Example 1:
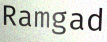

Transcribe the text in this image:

Ramgad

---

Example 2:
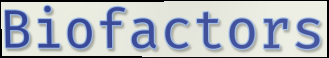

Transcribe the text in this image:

Biofactors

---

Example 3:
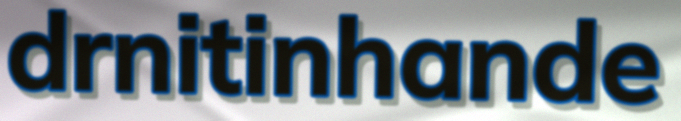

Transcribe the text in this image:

drnitinhande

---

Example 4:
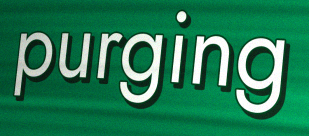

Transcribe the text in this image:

purging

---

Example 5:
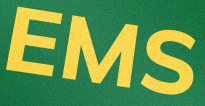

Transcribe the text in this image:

EMS